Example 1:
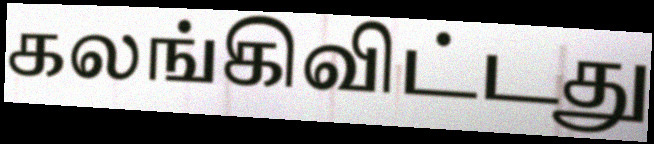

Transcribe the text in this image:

கலங்கிவிட்டது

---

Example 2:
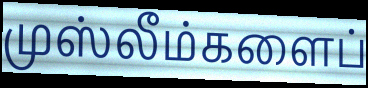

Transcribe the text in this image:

முஸ்லீம்களைப்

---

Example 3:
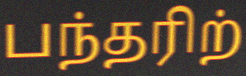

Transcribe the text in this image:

பந்தரிற்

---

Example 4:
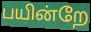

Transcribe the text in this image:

பயின்றே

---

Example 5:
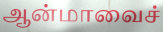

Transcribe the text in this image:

ஆன்மாவைச்